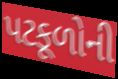
પટકૂળોની